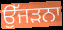
ਉੱਜੜਨਾ